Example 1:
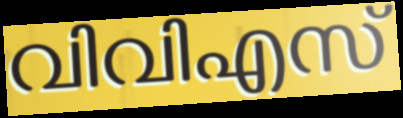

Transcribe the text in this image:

വിവിഎസ്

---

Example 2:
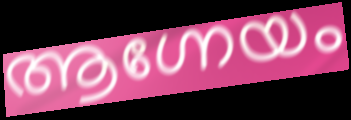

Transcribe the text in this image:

ആഗ്നേയം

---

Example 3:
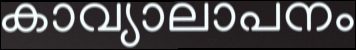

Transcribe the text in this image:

കാവ്യാലാപനം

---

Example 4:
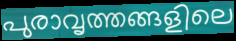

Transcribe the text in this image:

പുരാവൃത്തങ്ങളിലെ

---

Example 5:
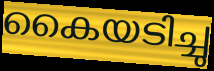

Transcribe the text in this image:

കൈയടിച്ചു